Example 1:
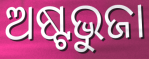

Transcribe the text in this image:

ଅଷ୍ଟଭୁଜା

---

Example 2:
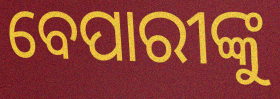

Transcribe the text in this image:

ବେପାରୀଙ୍କୁ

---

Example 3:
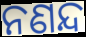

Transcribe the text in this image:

ନଣନ୍ଦ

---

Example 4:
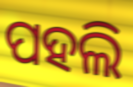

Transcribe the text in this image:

ପହଲି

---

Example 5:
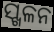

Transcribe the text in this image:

ସ୍ଖଳନ